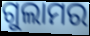
ଗୁଲାମର